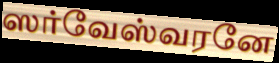
ஸர்வேஸ்வரனே